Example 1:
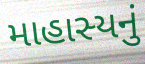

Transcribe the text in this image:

માહાસ્યનું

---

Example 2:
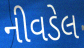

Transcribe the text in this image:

નીવડેલ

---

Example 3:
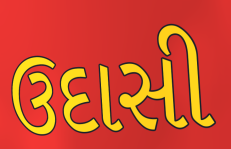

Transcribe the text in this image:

ઉદાસી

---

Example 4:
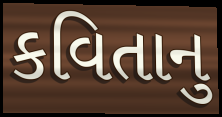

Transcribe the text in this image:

કવિતાનુ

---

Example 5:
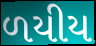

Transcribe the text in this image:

ળયીય